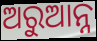
ଅରୁଆନ୍ନ